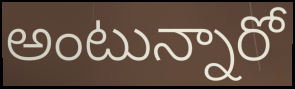
అంటున్నారో